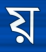
য়